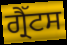
ਗ੍ਰੈੱਟਸ